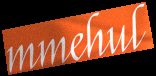
mmehul